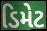
ડિમેટ